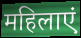
महिलाएं